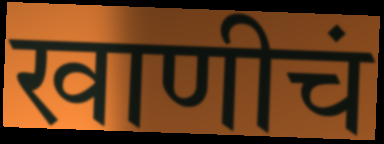
खाणीचं